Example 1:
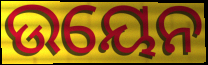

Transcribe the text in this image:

ଉୟେନ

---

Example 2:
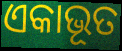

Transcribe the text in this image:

ଏକାଭୂତ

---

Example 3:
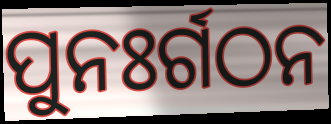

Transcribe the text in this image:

ପୁନଃର୍ଗଠନ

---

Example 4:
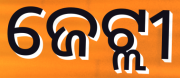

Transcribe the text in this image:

ଜେଟ୍ଲୀ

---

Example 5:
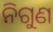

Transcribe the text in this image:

ନିଗୁଣ